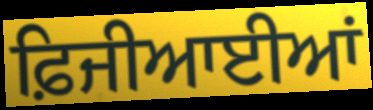
ਫ਼ਿਜੀਆਈਆਂ